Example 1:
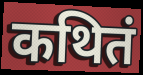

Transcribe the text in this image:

कथितं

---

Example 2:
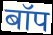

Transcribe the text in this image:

बॉप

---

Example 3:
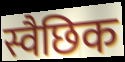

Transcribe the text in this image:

स्वैछिक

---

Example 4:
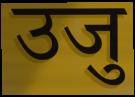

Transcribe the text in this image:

उजु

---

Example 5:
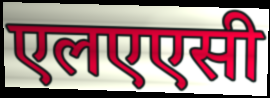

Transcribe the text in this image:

एलएएसी